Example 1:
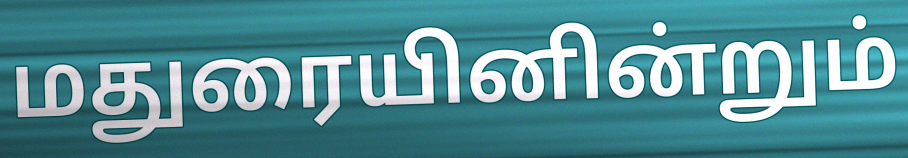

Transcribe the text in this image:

மதுரையினின்றும்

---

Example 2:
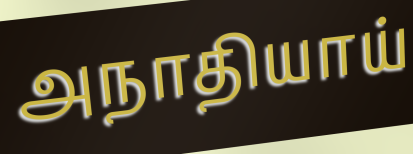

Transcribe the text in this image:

அநாதியாய்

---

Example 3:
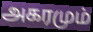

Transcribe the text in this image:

அகரமும்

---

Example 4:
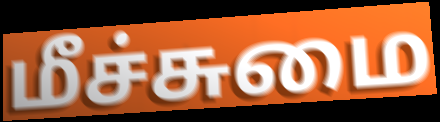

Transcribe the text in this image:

மீச்சுமை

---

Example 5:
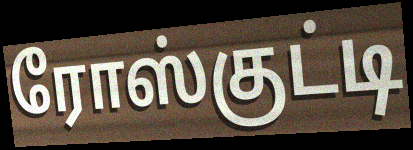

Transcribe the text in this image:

ரோஸ்குட்டி